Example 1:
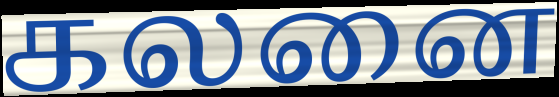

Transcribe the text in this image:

கலனை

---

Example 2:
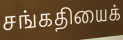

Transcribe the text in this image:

சங்கதியைக்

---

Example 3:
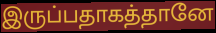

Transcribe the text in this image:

இருப்பதாகத்தானே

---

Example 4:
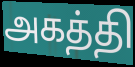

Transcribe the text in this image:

அகத்தி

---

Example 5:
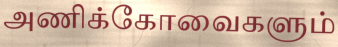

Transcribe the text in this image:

அணிக்கோவைகளும்